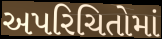
અપરિચિતોમાં